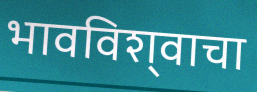
भावविश्वाचा